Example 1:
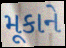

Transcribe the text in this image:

મૂકાને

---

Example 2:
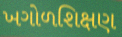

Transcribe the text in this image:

ખગોળશિક્ષણ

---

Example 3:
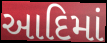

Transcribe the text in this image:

આદિમાં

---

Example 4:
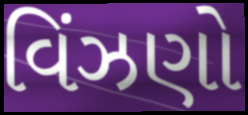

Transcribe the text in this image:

વિંઝણો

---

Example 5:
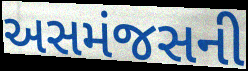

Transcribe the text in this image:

અસમંજસની